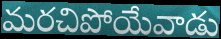
మరచిపోయేవాడు